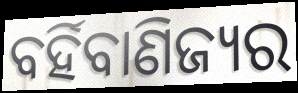
ବର୍ହିବାଣିଜ୍ୟର